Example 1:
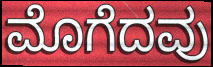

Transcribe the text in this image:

ಮೊಗೆದವು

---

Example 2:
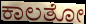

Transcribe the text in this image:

ಕಾಲತೋ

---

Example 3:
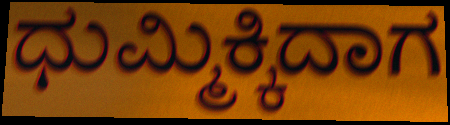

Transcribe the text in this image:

ಧುಮ್ಮಿಕ್ಕಿದಾಗ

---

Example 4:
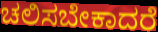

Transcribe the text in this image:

ಚಲಿಸಬೇಕಾದರೆ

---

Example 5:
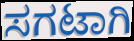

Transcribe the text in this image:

ಸಗಟಾಗಿ